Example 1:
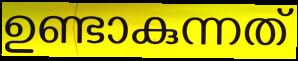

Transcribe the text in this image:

ഉണ്ടാകുന്നത്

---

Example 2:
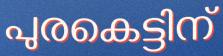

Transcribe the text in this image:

പുരകെട്ടിന്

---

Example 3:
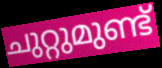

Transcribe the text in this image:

ചുറ്റുമുണ്ട്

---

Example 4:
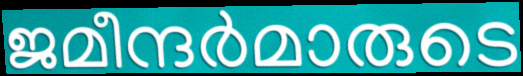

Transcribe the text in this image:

ജമീന്ദർമാരുടെ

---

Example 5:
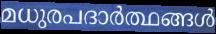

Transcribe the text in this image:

മധുരപദാർത്ഥങ്ങൾ